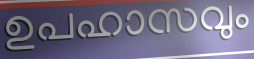
ഉപഹാസവും